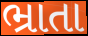
ભ્રાતા